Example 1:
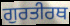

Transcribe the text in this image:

ਗੁਰਤੀਰਥ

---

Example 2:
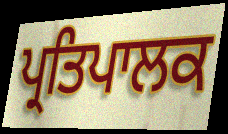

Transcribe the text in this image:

ਪ੍ਰਤਿਪਾਲਕ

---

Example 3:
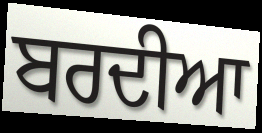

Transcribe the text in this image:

ਬਰਦੀਆ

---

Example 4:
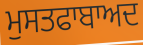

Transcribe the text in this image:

ਮੁਸਤਫਾਬਾਅਦ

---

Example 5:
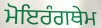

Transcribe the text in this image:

ਮੋਇਰੰਗਥੇਮ